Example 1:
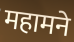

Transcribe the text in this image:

महामने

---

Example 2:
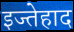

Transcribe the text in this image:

इज्तेहाद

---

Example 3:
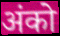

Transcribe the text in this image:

अंको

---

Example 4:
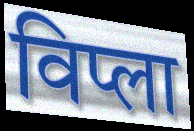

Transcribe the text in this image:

विप्ला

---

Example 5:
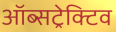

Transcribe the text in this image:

ऑब्सट्रेक्टिव